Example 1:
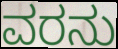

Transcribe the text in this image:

ವರನು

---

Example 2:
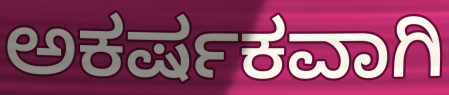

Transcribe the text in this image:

ಅಕರ್ಷಕವಾಗಿ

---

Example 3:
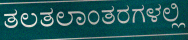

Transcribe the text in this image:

ತಲತಲಾಂತರಗಳಲ್ಲಿ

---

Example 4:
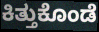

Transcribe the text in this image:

ಕಿತ್ತುಕೊಂಡೆ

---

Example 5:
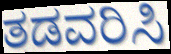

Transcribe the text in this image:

ತಡವರಿಸಿ